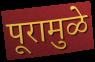
पूरामुळे